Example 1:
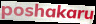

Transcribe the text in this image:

poshakaru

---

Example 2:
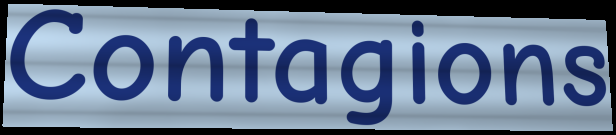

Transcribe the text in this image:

Contagions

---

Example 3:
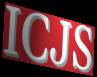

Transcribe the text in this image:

ICJS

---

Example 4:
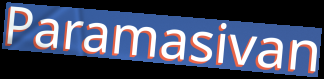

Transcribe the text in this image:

Paramasivan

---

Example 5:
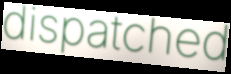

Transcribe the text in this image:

dispatched